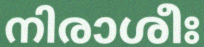
നിരാശീഃ